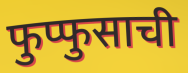
फुप्फुसाची